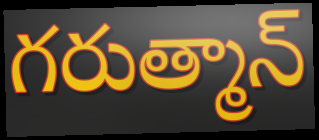
గరుత్మాన్